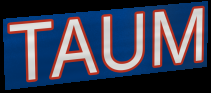
TAUM